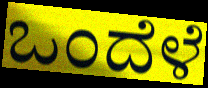
ಒಂದೆಳೆ